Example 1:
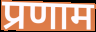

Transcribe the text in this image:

प्रणाम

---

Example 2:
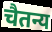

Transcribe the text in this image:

चैतन्य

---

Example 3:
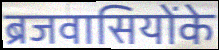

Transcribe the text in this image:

ब्रजवासियोंके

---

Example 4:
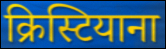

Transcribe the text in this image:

क्रिस्टियाना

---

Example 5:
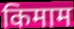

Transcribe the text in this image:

किमाम